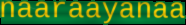
naaraayanaa